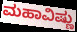
ಮಹಾವಿಷ್ಣು